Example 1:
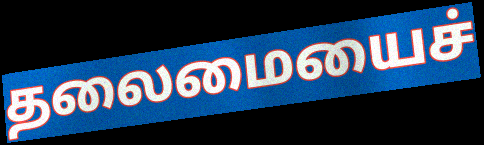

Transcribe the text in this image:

தலைமையைச்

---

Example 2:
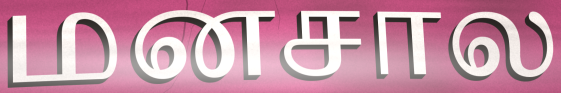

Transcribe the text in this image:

மனசால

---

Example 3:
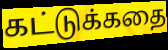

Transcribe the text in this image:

கட்டுக்கதை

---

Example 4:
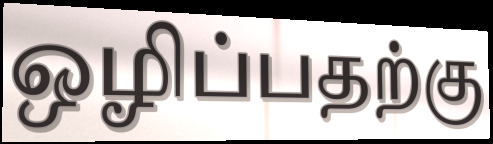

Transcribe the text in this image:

ஒழிப்பதற்கு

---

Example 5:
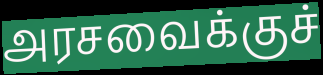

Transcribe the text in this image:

அரசவைக்குச்